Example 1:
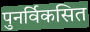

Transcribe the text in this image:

पुनर्विकसित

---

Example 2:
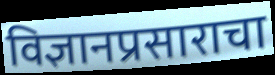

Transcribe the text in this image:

विज्ञानप्रसाराचा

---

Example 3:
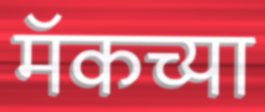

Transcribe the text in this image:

मॅकच्या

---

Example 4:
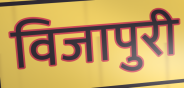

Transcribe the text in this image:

विजापुरी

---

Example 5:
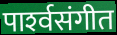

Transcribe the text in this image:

पार्श्‍वसंगीत